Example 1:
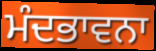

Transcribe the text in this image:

ਮੰਦਭਾਵਨਾ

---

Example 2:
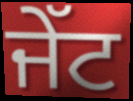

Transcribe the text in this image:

ਜੇੱਟ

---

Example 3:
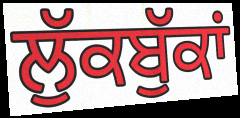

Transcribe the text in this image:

ਲੁੱਕਬੁੱਕਾਂ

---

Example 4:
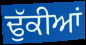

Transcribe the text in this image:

ਢੁੱਕੀਆਂ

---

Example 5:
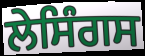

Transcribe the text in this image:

ਲੇਸਿੰਗਸ